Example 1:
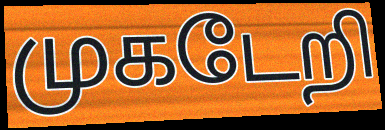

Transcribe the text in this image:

முகடேறி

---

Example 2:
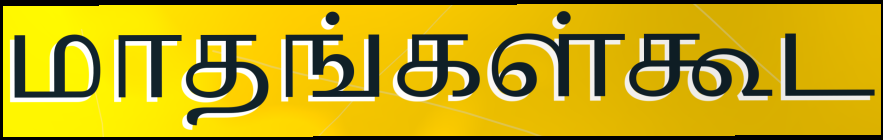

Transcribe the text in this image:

மாதங்கள்கூட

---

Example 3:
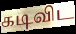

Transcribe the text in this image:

கடிவிட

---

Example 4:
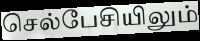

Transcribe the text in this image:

செல்பேசியிலும்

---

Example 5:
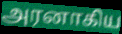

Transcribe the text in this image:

அரனாகிய